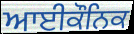
ਆਈਕੌਨਿਕ